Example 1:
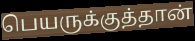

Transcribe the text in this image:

பெயருக்குத்தான்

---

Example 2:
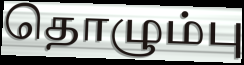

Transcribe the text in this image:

தொழும்பு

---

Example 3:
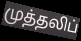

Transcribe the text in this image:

முத்தலிப்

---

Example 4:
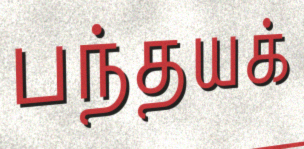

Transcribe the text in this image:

பந்தயக்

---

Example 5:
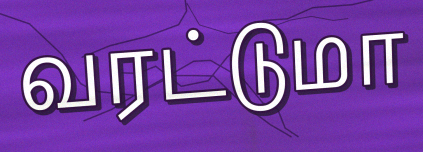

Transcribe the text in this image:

வரட்டுமா